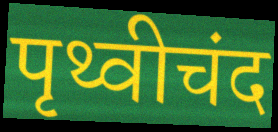
पृथ्वीचंद